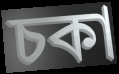
চকা